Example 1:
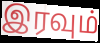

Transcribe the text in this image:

இரவும்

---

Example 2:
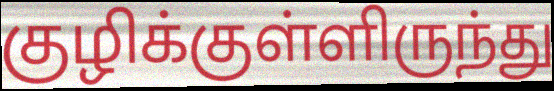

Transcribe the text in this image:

குழிக்குள்ளிருந்து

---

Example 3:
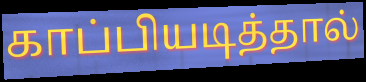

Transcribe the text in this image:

காப்பியடித்தால்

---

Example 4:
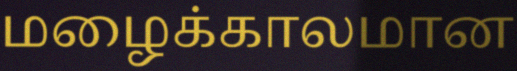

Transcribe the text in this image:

மழைக்காலமான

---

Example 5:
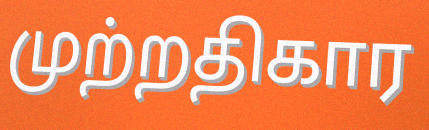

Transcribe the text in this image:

முற்றதிகார